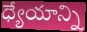
ధ్యేయాన్ని